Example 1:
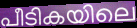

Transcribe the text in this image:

പീടികയിലെ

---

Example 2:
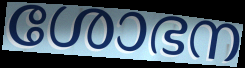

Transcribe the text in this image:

ശോഭന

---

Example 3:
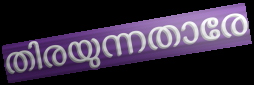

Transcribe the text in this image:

തിരയുന്നതാരേ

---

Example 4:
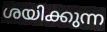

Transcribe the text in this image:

ശയിക്കുന്ന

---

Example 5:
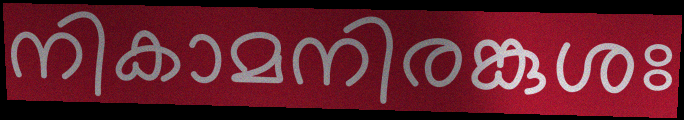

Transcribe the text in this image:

നികാമനിരങ്കുശഃ